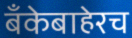
बँकेबाहेरच